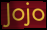
Jojo